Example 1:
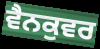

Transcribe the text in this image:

ਵੈਨਕੁਵਰ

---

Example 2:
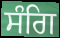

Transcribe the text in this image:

ਸੰਗਿ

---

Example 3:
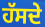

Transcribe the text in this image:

ਹੱਸਦੇ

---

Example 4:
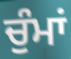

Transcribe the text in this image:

ਚੁੰਮਾਂ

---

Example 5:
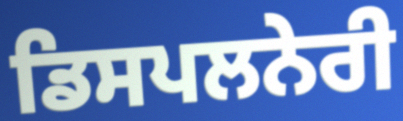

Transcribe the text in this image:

ਡਿਸਪਲਨੇਰੀ